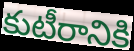
కుటీరానికి